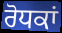
ਰੋਧਕਾਂ